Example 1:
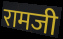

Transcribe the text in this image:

रामजी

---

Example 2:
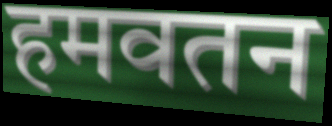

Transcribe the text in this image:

हमवतन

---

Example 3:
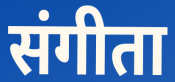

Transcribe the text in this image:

संगीता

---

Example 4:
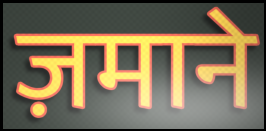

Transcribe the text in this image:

ज़माने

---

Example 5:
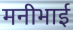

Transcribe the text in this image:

मनीभाई